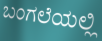
ಬಂಗಲೆಯಲ್ಲಿ